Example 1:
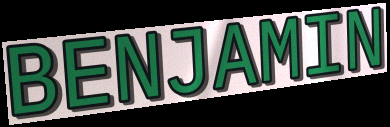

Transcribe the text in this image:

BENJAMIN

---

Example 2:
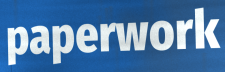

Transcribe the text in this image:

paperwork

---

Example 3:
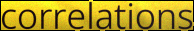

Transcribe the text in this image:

correlations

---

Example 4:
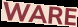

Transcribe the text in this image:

WARE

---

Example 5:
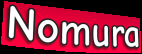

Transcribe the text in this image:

Nomura